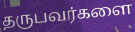
தருபவர்களை